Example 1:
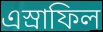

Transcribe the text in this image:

এস্রাফিল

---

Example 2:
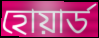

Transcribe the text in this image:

হোয়ার্ড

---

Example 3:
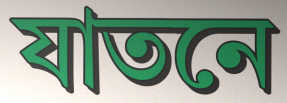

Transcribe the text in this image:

যাতনে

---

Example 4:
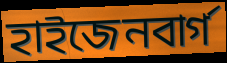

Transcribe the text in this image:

হাইজেনবার্গ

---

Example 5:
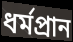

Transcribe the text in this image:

ধর্মপ্রান